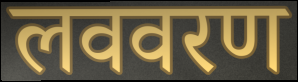
लववरण